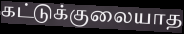
கட்டுக்குலையாத